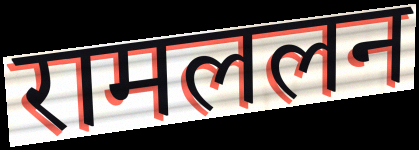
रामललन